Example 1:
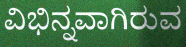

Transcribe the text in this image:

ವಿಭಿನ್ನವಾಗಿರುವ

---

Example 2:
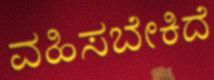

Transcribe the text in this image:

ವಹಿಸಬೇಕಿದೆ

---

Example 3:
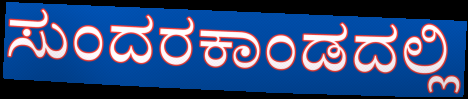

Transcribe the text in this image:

ಸುಂದರಕಾಂಡದಲ್ಲಿ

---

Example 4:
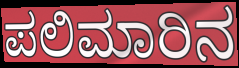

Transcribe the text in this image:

ಪಲಿಮಾರಿನ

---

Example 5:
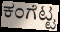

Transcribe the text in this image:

ಕಂಗೆಟ್ಟ